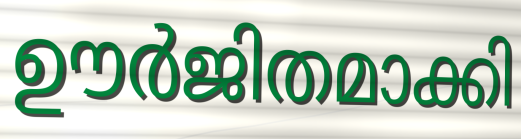
ഊർജിതമാക്കി